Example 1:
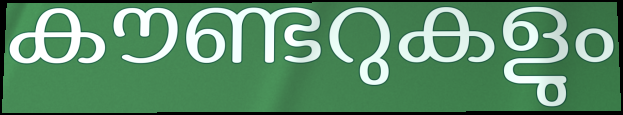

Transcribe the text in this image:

കൗണ്ടറുകളും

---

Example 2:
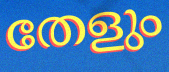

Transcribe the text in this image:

തേളും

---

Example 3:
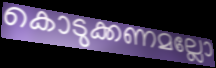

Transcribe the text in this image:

കൊടുക്കണമല്ലോ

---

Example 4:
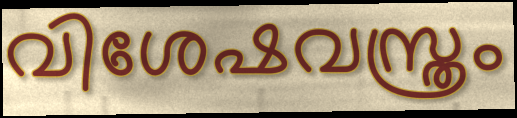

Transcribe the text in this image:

വിശേഷവസ്ത്രം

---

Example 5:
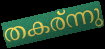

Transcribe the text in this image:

തകര്ന്നു